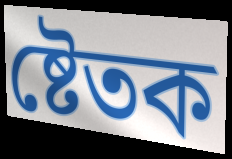
ষ্টেতক